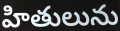
హితులును